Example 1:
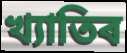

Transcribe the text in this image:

খ্যাতিৰ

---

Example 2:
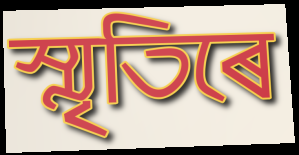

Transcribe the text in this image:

স্মৃতিৰে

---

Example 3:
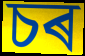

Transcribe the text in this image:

চৰ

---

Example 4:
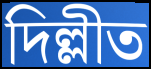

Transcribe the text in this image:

দিল্লীত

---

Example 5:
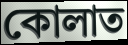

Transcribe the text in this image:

কোলাত